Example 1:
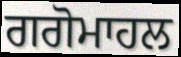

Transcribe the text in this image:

ਗਗੋਮਾਹਲ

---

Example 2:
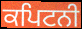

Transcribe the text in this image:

ਕਪਿਟਨੀ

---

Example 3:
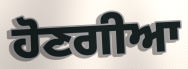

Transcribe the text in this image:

ਹੋਣਗੀਆ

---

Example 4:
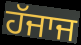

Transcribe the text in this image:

ਹੱਜਾਜ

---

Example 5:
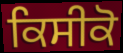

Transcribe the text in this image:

ਕਿਸੀਕੋ